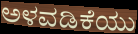
ಅಳವಡಿಕೆಯು